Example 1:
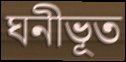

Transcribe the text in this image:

ঘনীভূত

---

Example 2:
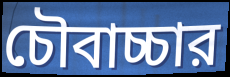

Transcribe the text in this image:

চৌবাচ্চার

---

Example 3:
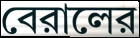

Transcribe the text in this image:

বেরালের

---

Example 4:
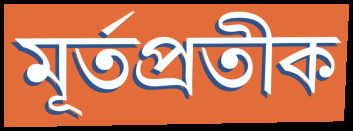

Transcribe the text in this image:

মূর্তপ্রতীক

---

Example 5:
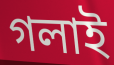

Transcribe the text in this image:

গলাই